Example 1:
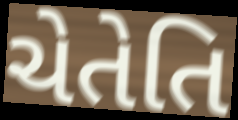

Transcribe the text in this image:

ચેતેતિ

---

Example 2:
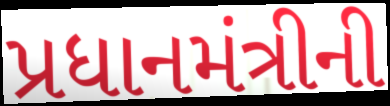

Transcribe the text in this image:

પ્રધાનમંત્રીની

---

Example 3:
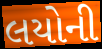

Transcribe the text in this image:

લયોની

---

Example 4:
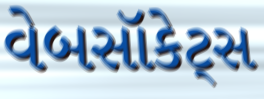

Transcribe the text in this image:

વેબસૉકેટ્સ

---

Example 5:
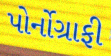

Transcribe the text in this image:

પોર્નોગ્રાફી